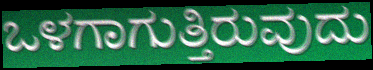
ಒಳಗಾಗುತ್ತಿರುವುದು